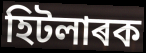
হিটলাৰক